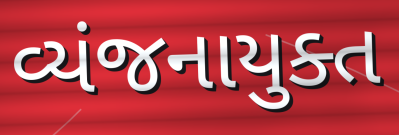
વ્યંજનાયુક્ત